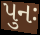
પુનઃ